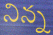
నిన్న